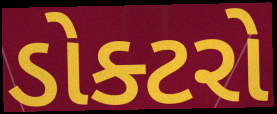
ડોક્ટરો